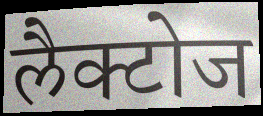
लैक्टोज